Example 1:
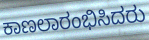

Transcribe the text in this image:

ಕಾಣಲಾರಂಭಿಸಿದರು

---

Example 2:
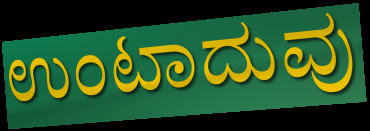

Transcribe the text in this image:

ಉಂಟಾದುವು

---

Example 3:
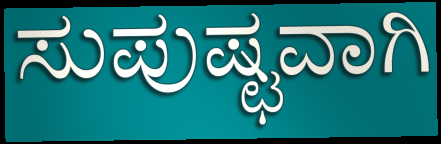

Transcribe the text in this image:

ಸುಪುಷ್ಟವಾಗಿ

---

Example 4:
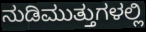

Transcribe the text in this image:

ನುಡಿಮುತ್ತುಗಳಲ್ಲಿ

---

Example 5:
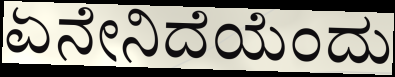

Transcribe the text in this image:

ಏನೇನಿದೆಯೆಂದು